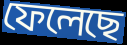
ফেলেছে